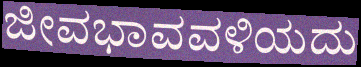
ಜೀವಭಾವವಳಿಯದು